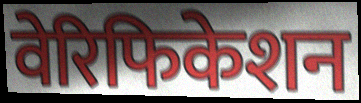
वेरिफिकेशन